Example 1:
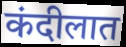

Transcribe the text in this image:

कंदीलात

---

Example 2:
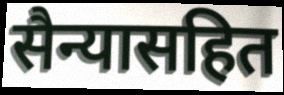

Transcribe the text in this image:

सैन्यासहित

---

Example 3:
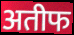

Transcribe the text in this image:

अतीफ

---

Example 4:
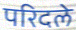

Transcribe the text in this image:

परिदले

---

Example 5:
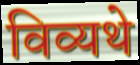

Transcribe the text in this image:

विव्यथे